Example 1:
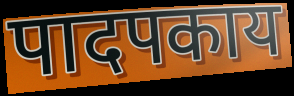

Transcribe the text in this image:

पादपकाय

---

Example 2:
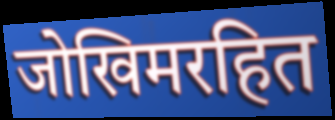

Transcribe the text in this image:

जोखिमरहित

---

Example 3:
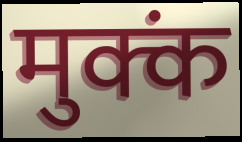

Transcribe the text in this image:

मुक्कं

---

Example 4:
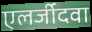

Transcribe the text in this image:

एलर्जीदवा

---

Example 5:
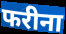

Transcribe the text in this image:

फरीना